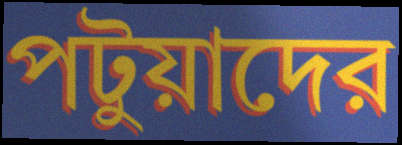
পটুয়াদের